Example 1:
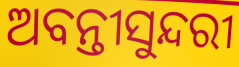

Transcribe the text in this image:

ଅବନ୍ତୀସୁନ୍ଦରୀ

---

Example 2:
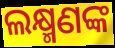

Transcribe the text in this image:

ଲକ୍ଷ୍ମଣଙ୍କ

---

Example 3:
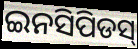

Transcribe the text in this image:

ଇନସିପିଡସ୍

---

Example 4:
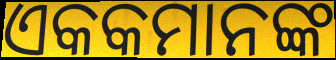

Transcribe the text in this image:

ଏକକମାନଙ୍କ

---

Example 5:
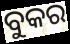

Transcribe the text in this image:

ବୁକର